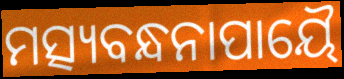
ମତ୍ସ୍ୟବନ୍ଧନାପାୟୈ